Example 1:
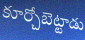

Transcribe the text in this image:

కూర్చోబెట్టాడు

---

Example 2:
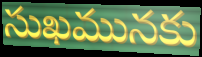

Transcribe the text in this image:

సుఖమునకు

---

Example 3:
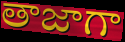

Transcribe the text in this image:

తాజాగా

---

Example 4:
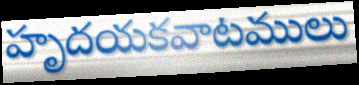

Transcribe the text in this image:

హృదయకవాటములు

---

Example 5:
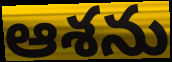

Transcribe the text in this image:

ఆశను